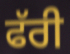
ਫੱਰੀ